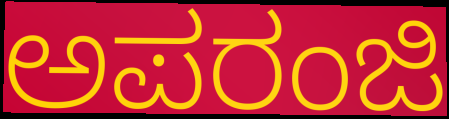
ಅಪರಂಜಿ